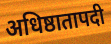
अधिष्ठातापदी